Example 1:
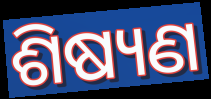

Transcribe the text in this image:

ଶିଷ୍ୟଣ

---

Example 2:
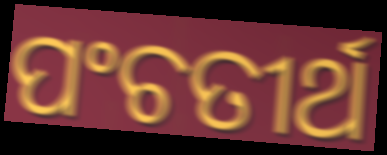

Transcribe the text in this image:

ପଂଚତୀର୍ଥ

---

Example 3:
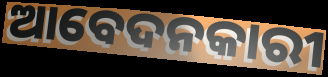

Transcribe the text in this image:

ଆବେଦନକାରୀ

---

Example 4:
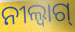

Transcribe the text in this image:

ନୀଲ୍ବାଗ୍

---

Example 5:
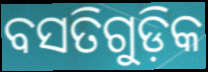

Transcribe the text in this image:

ବସତିଗୁଡ଼ିକ